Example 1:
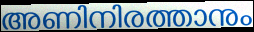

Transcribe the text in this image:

അണിനിരത്താനും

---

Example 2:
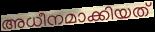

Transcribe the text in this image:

അധീനമാക്കിയത്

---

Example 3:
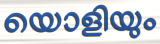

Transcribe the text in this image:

യൊളിയും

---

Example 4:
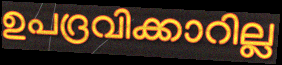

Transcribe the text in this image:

ഉപദ്രവിക്കാറില്ല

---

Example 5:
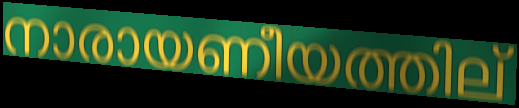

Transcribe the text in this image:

നാരായണീയത്തില്